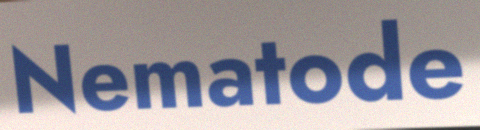
Nematode